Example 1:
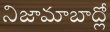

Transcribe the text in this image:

నిజామాబాద్లో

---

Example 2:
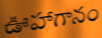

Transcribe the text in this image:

ఊహాగానం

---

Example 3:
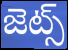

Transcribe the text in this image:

జెట్స్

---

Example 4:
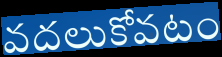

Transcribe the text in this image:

వదలుకోవటం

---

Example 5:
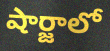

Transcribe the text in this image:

షార్జాలో